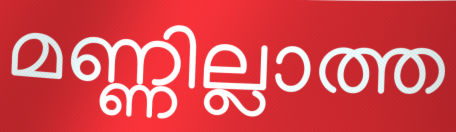
മണ്ണില്ലാത്ത